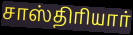
சாஸ்திரியார்